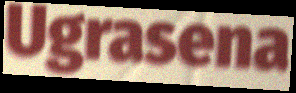
Ugrasena